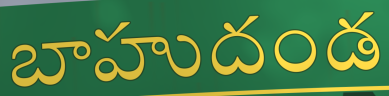
బాహుదండ